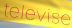
televise